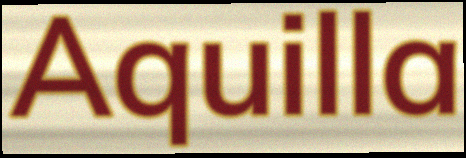
Aquilla